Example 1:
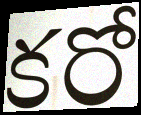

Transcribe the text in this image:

కరో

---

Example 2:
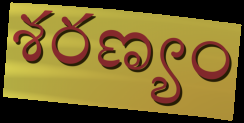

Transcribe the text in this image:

శరణ్యం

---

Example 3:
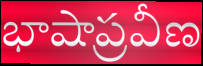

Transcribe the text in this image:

భాషాప్రవీణ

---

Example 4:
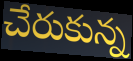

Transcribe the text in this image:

చేరుకున్న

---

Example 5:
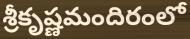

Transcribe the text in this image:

శ్రీకృష్ణమందిరంలో